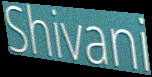
Shivani